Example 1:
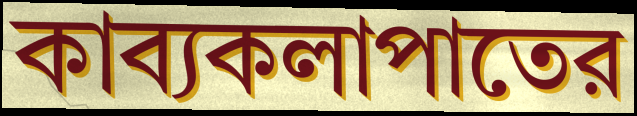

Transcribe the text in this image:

কাব্যকলাপাতের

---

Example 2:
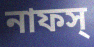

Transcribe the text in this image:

নাফস্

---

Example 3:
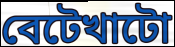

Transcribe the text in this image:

বেটেখাটো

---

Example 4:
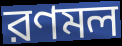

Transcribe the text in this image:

রণমল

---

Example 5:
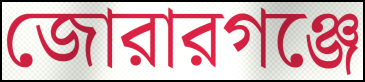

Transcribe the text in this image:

জোরারগঞ্জে